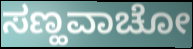
ಸಣ್ಹವಾಚೋ